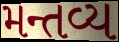
મન્તવ્ય